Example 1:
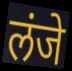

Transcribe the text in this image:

लंजे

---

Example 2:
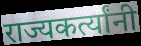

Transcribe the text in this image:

राज्यकर्त्यांनी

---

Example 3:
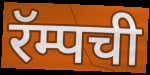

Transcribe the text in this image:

रॅम्पची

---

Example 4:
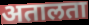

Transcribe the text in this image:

अतालता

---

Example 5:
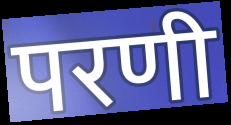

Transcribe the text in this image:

परणी